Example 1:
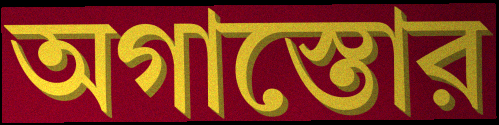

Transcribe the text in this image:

অগাস্তোর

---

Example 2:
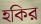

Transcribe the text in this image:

হকির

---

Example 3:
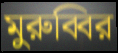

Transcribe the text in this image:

মুরুব্বির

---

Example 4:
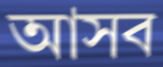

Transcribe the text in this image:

আসব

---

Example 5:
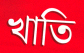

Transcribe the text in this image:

খাতি